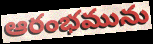
ఆరంభమును